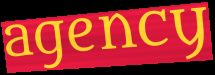
agency